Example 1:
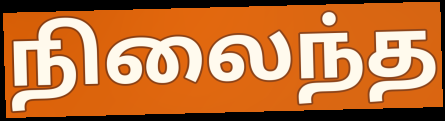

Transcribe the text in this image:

நிலைந்த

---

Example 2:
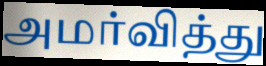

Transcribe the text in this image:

அமர்வித்து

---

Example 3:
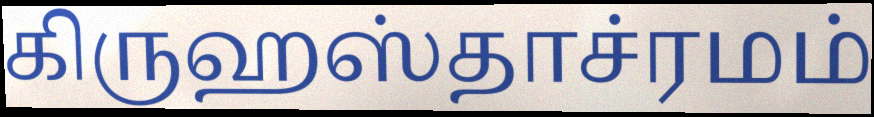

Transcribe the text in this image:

கிருஹஸ்தாச்ரமம்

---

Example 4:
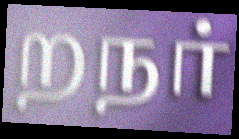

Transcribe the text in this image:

றநர்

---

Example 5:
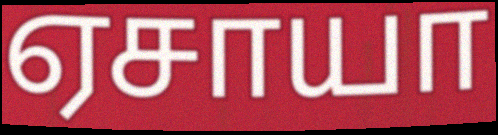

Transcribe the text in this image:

ஏசாயா